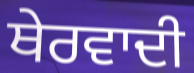
ਥੇਰਵਾਦੀ